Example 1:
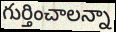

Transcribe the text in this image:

గుర్తించాలన్నా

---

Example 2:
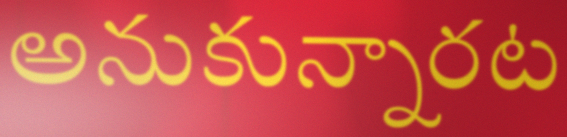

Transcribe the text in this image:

అనుకున్నారట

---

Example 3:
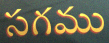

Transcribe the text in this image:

సగము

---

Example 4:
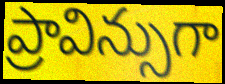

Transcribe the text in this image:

ప్రావిన్సుగా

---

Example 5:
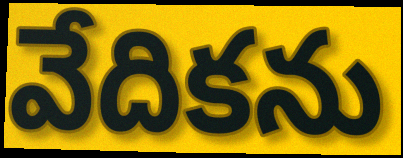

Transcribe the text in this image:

వేదికను